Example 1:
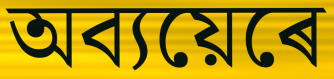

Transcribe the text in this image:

অব্যয়েৰে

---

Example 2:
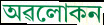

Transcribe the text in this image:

অৱলোকন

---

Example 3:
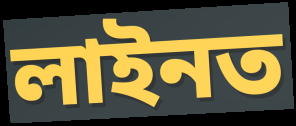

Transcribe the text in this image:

লাইনত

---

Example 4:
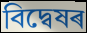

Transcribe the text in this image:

বিদ্বেষৰ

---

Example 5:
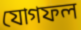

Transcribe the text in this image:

যোগফল